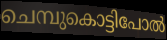
ചെമ്പുകൊട്ടിപോൽ